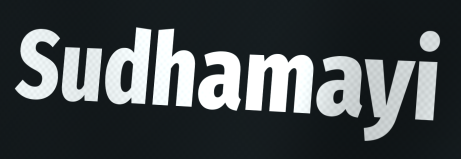
Sudhamayi